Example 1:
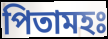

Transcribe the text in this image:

পিতামহঃ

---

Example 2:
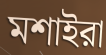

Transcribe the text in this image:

মশাইরা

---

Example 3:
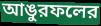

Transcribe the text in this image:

আঙুরফলের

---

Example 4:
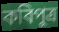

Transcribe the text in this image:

কবিপুত্র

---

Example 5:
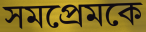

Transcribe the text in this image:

সমপ্রেমকে